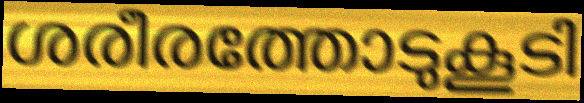
ശരീരത്തോടുകൂടി